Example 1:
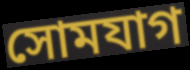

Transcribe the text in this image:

সোমযাগ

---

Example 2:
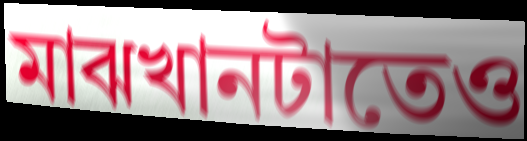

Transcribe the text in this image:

মাঝখানটাতেও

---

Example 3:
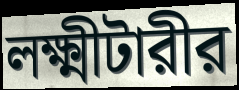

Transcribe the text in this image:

লক্ষ্মীটারীর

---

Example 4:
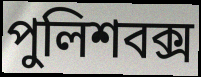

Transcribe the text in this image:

পুলিশবক্স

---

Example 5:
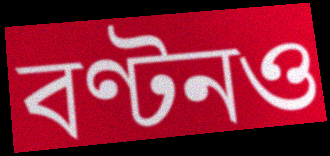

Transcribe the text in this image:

বণ্টনও